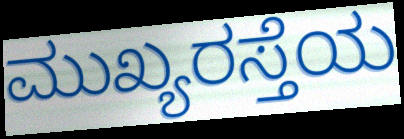
ಮುಖ್ಯರಸ್ತೆಯ